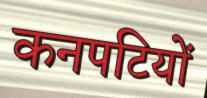
कनपटियों